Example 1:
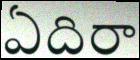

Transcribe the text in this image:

ఏదిరా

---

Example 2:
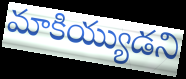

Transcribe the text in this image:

మాకియ్యుడని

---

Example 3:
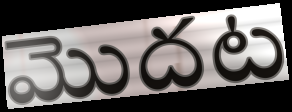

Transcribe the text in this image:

మొదట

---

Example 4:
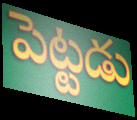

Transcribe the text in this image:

పెట్టడు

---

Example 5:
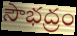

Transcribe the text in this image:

సౌభద్రం